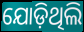
ଯୋଡ଼ିଥିଲି